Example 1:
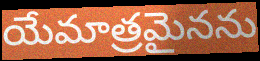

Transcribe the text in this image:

యేమాత్రమైనను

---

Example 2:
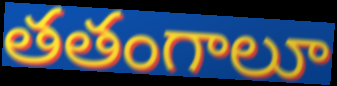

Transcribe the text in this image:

తతంగాలూ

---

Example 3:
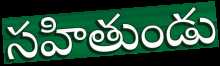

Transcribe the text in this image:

సహితుండు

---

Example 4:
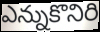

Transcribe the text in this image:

ఎన్నుకొనిరి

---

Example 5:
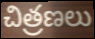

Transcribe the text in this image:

చిత్రణలు